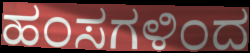
ಹಂಸಗಳಿಂದ